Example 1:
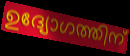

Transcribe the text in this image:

ഉദ്യോഗത്തിന്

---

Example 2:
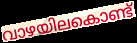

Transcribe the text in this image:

വാഴയിലകൊണ്ട്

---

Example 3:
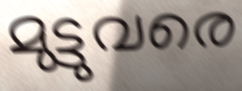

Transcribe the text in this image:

മുട്ടുവരെ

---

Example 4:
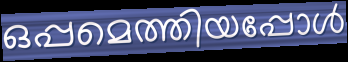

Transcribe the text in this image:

ഒപ്പമെത്തിയപ്പോൾ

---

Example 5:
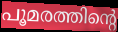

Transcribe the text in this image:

പൂമരത്തിന്റെ